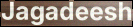
Jagadeesh